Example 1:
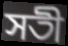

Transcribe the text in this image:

সতী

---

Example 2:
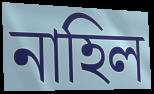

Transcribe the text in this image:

নাহিল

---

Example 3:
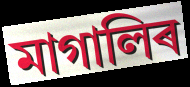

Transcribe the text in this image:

মাগালিৰ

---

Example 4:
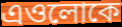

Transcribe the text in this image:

এওলোকে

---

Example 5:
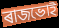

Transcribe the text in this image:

ৰাজভোই